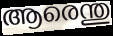
ആരെന്തു